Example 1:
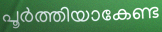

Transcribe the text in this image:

പൂർത്തിയാകേണ്ട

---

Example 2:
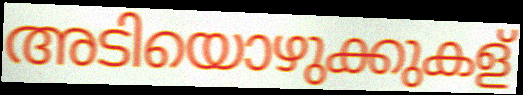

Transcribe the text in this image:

അടിയൊഴുക്കുകള്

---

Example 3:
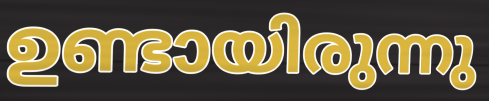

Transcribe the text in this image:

ഉണ്ടായിരുന്നു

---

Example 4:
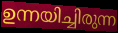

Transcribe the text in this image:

ഉന്നയിച്ചിരുന്ന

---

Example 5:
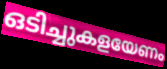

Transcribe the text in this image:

ഒടിച്ചുകളയേണം